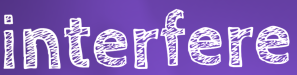
interfere